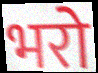
भरो